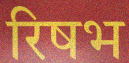
रिषभ